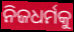
ନିଜଧର୍ମକୁ